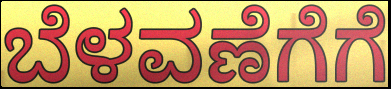
ಬೆಳವಣೆಗೆಗೆ